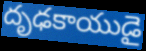
దృఢకాయుడై